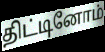
திட்டினோம்